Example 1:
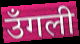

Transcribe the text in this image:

उँगली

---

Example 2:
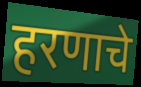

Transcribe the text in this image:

हरणाचे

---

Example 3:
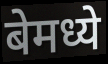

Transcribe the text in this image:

बेमध्ये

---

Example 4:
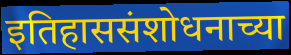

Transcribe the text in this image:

इतिहाससंशोधनाच्या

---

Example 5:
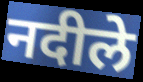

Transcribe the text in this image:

नदीले